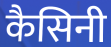
कैसिनी